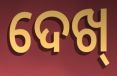
ଦେଖ୍